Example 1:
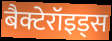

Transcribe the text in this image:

बैक्टेरॉइड्स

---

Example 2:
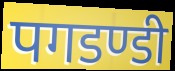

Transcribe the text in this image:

पगडण्डी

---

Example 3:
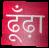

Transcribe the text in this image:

ढूँढ़ा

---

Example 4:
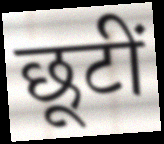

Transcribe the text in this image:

छूटीं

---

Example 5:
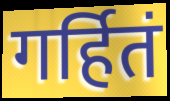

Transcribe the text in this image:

गर्हितं